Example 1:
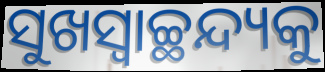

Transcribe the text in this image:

ସୁଖସ୍ଵାଚ୍ଛନ୍ଦ୍ୟକୁ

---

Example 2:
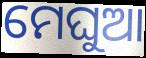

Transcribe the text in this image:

ମେଘୁଆ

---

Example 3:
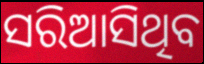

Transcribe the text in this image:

ସରିଆସିଥିବ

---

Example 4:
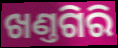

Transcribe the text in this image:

ଖଣ୍ତଗିରି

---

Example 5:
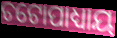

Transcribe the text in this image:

ଚଟୋପାଧ୍ୟାୟ